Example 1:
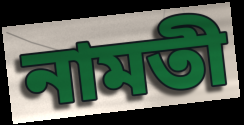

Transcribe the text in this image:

নামতী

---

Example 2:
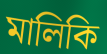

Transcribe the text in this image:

মালিকি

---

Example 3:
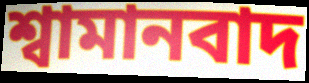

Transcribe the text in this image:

শ্বামানবাদ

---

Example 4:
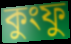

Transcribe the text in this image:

কুংফু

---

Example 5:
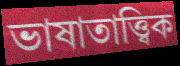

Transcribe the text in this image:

ভাষাতাত্ত্বিক